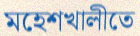
মহেশখালীতে